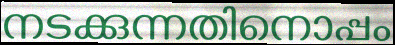
നടക്കുന്നതിനൊപ്പം